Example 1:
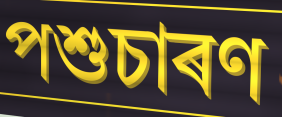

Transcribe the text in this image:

পশুচাৰণ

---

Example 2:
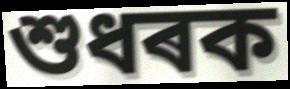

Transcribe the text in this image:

শুধৰক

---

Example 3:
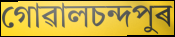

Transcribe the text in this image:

গোৱালচন্দপুৰ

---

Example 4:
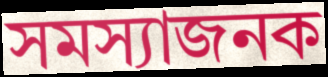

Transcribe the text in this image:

সমস্যাজনক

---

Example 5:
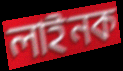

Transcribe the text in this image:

লাইনক